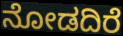
ನೋಡದಿರೆ